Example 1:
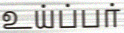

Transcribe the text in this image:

உய்ப்பர்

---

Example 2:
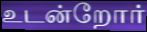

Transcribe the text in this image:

உடன்றோர்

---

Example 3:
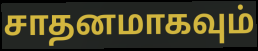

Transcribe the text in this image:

சாதனமாகவும்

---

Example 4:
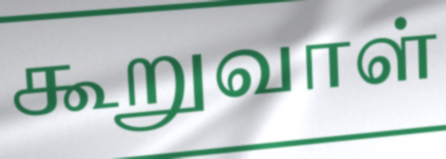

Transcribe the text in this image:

கூறுவாள்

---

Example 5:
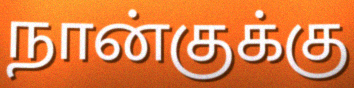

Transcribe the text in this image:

நான்குக்கு